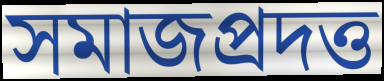
সমাজপ্রদত্ত